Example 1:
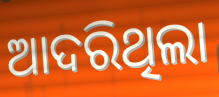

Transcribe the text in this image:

ଆଦରିଥିଲା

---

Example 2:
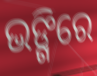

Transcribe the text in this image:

ଭଙ୍ଗିରେ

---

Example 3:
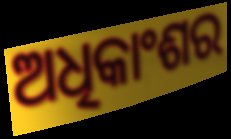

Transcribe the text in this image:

ଅଧିକାଂଶର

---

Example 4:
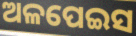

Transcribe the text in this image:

ଅଳପେଇସ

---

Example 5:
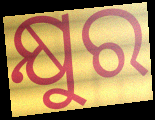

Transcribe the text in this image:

କ୍ଷୁର